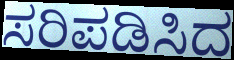
ಸರಿಪಡಿಸಿದ